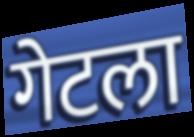
गेटला